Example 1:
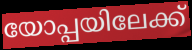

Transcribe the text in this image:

യോപ്പയിലേക്ക്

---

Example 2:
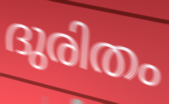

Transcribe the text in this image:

ദുരിതം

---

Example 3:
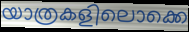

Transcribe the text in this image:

യാത്രകളിലൊക്കെ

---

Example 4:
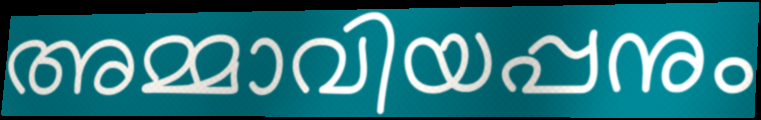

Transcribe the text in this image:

അമ്മാവിയപ്പനും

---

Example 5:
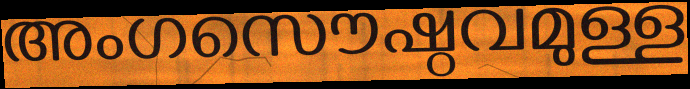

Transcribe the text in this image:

അംഗസൌഷ്ഠവമുള്ള